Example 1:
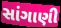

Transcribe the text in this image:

સાંગાણી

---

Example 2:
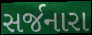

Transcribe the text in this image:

સર્જનારા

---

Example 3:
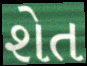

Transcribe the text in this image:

શેત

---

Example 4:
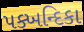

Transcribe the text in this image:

પક્ખન્દિકા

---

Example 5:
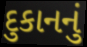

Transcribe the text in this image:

દુકાનનું